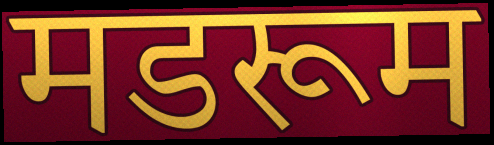
मडरूम